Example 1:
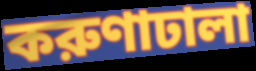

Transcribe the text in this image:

করুণাঢালা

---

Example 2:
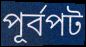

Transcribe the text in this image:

পূর্বপট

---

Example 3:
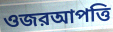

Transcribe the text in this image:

ওজরআপত্তি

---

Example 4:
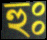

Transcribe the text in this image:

হুঃ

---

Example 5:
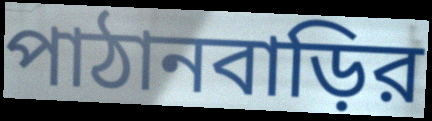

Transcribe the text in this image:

পাঠানবাড়ির